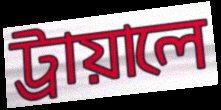
ট্রায়ালে